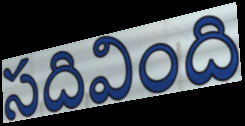
సదివింది